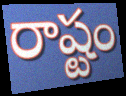
రాష్టం